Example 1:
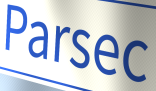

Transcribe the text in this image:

Parsec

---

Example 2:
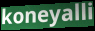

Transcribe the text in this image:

koneyalli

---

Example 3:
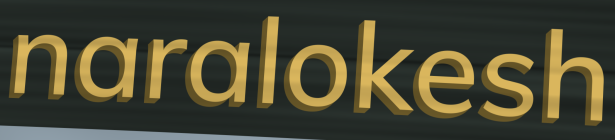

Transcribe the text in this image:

naralokesh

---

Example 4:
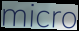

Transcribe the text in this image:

micro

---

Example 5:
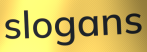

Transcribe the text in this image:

slogans